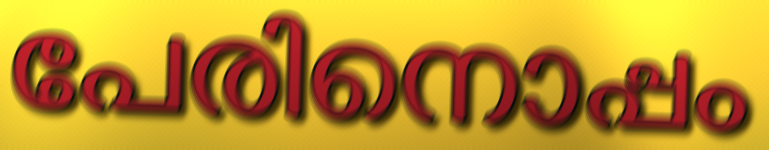
പേരിനൊപ്പം